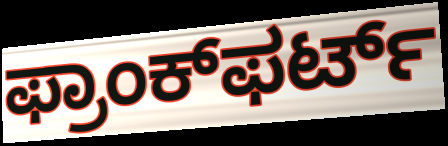
ಫ್ರಾಂಕ್‌ಫರ್ಟ್